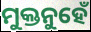
ମୁକ୍ତନୁହେଁ